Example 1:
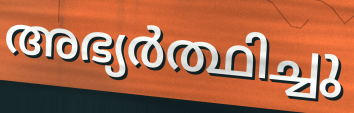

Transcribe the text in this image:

അഭ്യർത്ഥിച്ചു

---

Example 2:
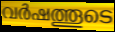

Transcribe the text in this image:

വർഷത്തൂടെ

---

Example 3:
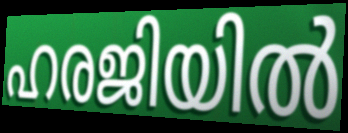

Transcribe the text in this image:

ഹരജിയിൽ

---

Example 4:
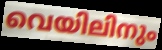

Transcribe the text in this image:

വെയിലിനും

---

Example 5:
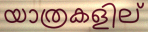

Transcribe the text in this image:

യാത്രകളില്